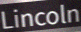
Lincoln